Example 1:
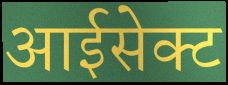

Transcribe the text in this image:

आईसेक्ट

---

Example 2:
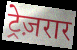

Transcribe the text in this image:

ट्रेज़रार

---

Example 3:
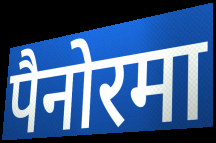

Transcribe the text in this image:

पैनोरमा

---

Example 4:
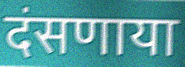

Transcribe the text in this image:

दंसणाया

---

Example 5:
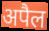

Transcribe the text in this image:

अपैल